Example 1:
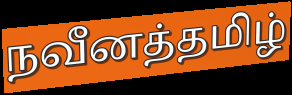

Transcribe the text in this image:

நவீனத்தமிழ்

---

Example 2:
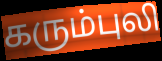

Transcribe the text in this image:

கரும்புலி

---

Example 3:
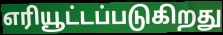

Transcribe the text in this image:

எரியூட்டப்படுகிறது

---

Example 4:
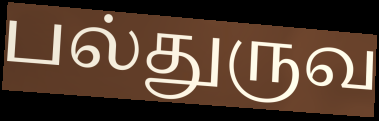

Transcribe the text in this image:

பல்துருவ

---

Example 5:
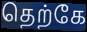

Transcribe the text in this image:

தெற்கே